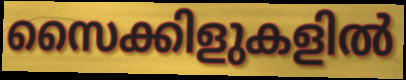
സൈക്കിളുകളിൽ